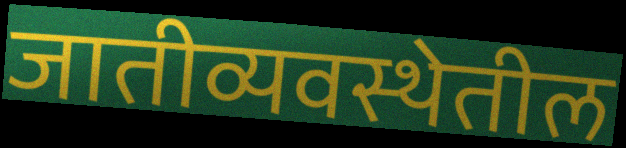
जातीव्यवस्थेतील